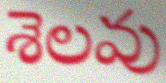
శెలవు